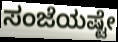
ಸಂಜೆಯಷ್ಟೇ